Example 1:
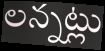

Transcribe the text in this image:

లన్నట్లు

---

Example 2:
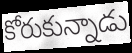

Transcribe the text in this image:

కోరుకున్నాడు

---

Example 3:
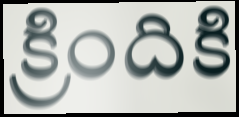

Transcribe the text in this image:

క్రిందికి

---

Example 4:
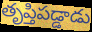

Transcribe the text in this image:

తృప్తిపడ్డాడు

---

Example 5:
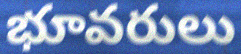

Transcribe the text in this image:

భూవరులు